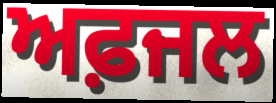
ਅਫ਼ਜਲ